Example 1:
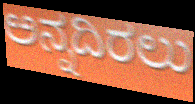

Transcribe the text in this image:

ಅನ್ನದಿರಲು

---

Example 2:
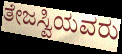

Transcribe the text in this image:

ತೇಜಸ್ವಿಯವರು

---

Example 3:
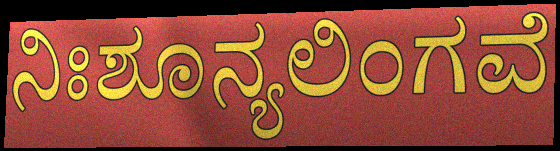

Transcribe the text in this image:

ನಿಃಶೂನ್ಯಲಿಂಗವೆ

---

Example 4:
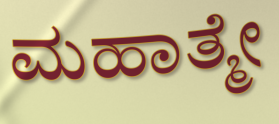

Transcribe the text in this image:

ಮಹಾತ್ಮೇ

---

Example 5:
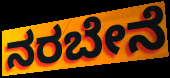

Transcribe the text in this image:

ನರಬೇನೆ